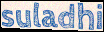
suladhi